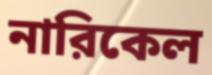
নারিকেল